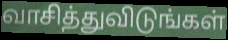
வாசித்துவிடுங்கள்